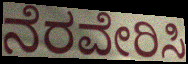
ನೆರವೇರಿಸಿ